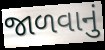
જાળવાનું